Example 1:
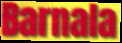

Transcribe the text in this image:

Barnala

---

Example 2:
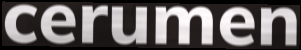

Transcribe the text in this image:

cerumen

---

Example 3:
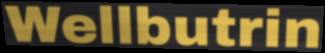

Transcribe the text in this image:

Wellbutrin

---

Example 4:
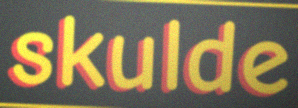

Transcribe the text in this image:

skulde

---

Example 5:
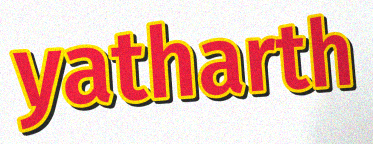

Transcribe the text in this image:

yatharth